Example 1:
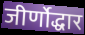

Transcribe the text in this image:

जीर्णोद्धार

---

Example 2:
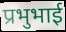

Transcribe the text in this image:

प्रभुभाई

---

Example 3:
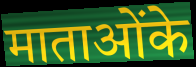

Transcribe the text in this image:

माताओंके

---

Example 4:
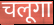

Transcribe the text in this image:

चलूगा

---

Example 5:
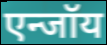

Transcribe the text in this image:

एन्जॉय